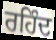
ਰਹਿੰਦ